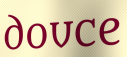
douce